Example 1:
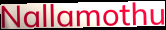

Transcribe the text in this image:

Nallamothu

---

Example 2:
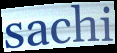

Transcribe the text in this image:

sachi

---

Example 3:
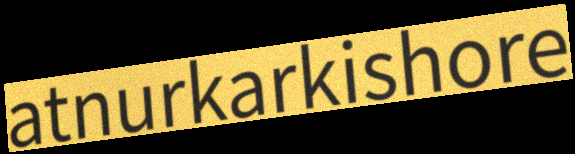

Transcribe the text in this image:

atnurkarkishore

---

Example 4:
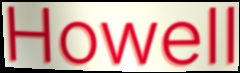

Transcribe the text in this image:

Howell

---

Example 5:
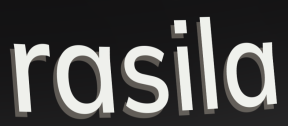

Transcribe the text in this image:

rasila